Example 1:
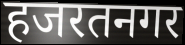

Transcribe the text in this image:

हजरतनगर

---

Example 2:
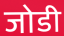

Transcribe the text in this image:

जोडी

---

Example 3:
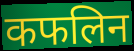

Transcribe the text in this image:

कफलिन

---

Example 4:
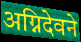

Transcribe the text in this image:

अग्निदेवने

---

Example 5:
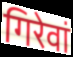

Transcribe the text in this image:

गिरेवां